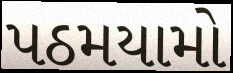
પઠમયામો